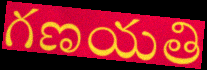
గణయతి